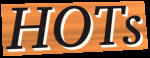
HOTs